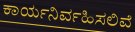
ಕಾರ್ಯನಿರ್ವಹಿಸಲಿವೆ